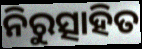
ନିରୁତ୍ସାହିତ